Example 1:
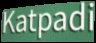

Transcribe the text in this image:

Katpadi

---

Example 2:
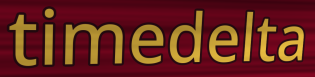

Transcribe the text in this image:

timedelta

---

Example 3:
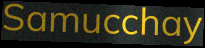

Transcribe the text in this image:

Samucchay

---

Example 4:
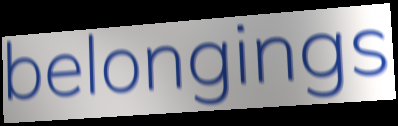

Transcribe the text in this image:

belongings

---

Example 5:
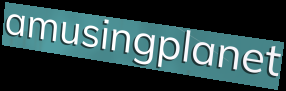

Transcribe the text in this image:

amusingplanet